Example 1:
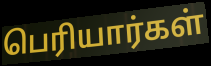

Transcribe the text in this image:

பெரியார்கள்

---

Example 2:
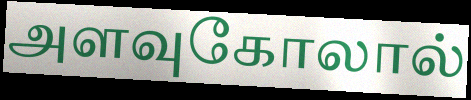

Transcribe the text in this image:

அளவுகோலால்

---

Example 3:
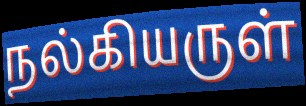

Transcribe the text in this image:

நல்கியருள்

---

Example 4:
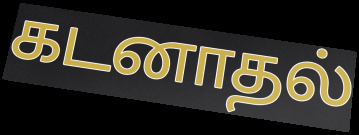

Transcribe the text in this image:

கடனாதல்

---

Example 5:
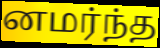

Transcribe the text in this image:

னமர்ந்த